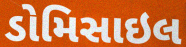
ડોમિસાઇલ